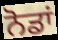
ਨੋਡਾਂ